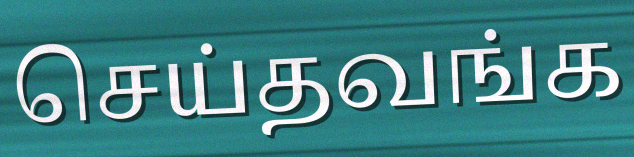
செய்தவங்க